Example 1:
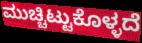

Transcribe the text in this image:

ಮುಚ್ಚಿಟ್ಟುಕೊಳ್ಳದೆ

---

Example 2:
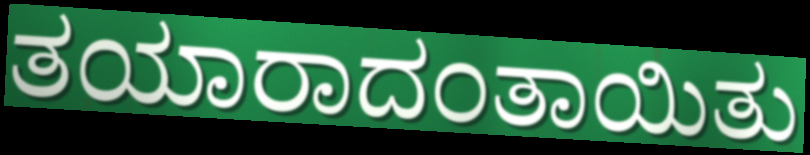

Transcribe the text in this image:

ತಯಾರಾದಂತಾಯಿತು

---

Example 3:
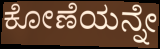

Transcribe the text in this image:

ಕೋಣೆಯನ್ನೇ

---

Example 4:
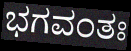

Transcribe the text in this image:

ಭಗವಂತಃ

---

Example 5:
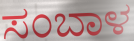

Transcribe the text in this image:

ಸಂಬಾಳ